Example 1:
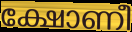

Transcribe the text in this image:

ക്ഷോണീ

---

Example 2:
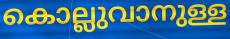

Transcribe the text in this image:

കൊല്ലുവാനുള്ള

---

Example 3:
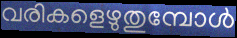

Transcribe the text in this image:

വരികളെഴുതുമ്പോൾ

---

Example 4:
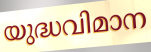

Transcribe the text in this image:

യുദ്ധവിമാന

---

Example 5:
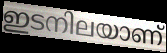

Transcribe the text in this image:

ഇടനിലയാണ്